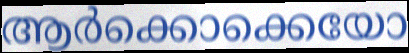
ആർക്കൊക്കെയോ